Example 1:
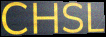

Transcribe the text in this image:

CHSL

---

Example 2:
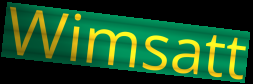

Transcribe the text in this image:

Wimsatt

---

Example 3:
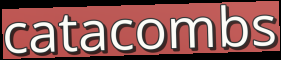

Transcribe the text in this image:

catacombs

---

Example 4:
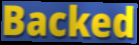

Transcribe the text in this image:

Backed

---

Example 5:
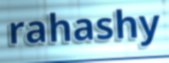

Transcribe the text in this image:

rahashy